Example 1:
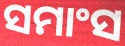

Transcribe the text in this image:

ସମାଂସ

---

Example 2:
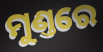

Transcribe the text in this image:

ମୁଣ୍ତରେ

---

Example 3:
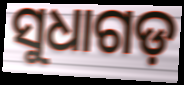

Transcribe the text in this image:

ସୁଧାଗଡ଼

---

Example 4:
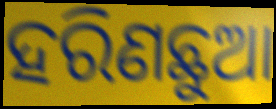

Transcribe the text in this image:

ହରିଣଛୁଆ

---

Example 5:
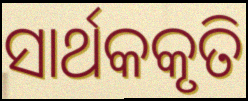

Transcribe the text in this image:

ସାର୍ଥକକୃତି